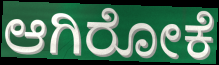
ಆಗಿರೋಕೆ